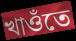
খাওঁতে